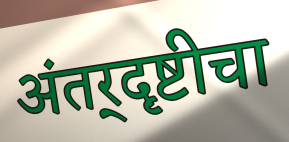
अंतर्दृष्टीचा